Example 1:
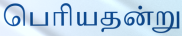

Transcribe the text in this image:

பெரியதன்று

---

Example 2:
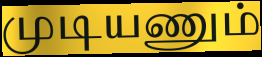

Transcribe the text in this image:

முடியணும்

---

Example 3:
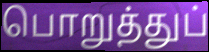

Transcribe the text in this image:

பொறுத்துப்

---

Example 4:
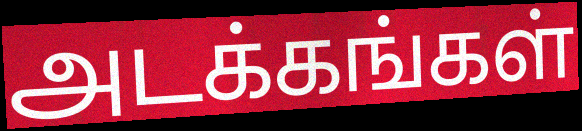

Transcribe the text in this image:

அடக்கங்கள்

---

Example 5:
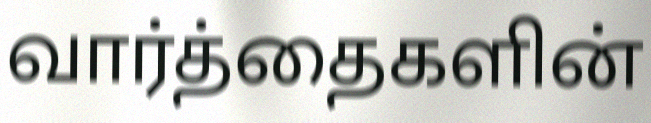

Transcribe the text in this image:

வார்த்தைகளின்